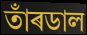
তাঁৰডাল